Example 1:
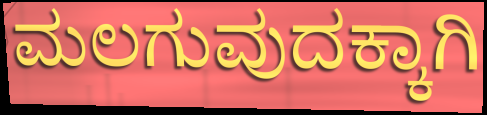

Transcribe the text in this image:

ಮಲಗುವುದಕ್ಕಾಗಿ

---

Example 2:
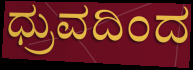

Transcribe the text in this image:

ಧ್ರುವದಿಂದ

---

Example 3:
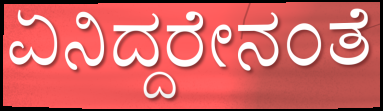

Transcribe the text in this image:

ಏನಿದ್ದರೇನಂತೆ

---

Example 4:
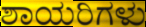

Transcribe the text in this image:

ಶಾಯರಿಗಳು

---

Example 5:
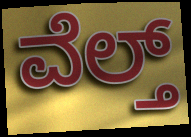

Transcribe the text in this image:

ವೆಲ್ತ್